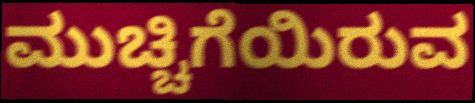
ಮುಚ್ಚಿಗೆಯಿರುವ